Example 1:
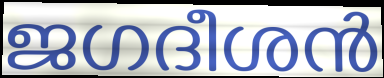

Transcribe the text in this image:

ജഗദീശൻ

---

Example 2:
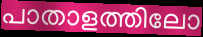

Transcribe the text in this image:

പാതാളത്തിലോ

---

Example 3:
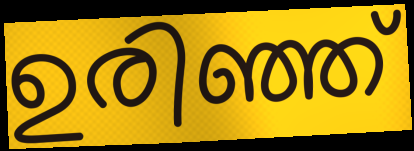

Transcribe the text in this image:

ഉരിഞ്ഞ്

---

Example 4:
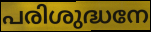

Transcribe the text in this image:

പരിശുദ്ധനേ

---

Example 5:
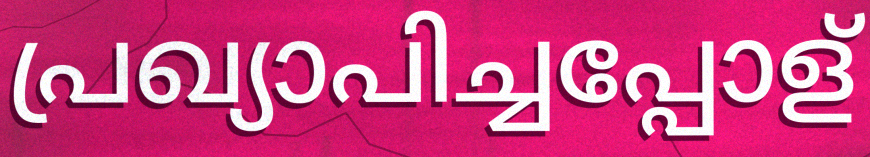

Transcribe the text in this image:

പ്രഖ്യാപിച്ചപ്പോള്